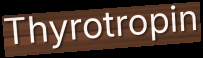
Thyrotropin